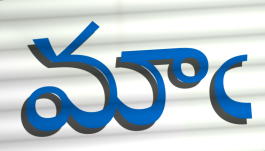
మాఁ